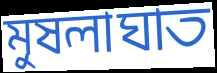
মুষলাঘাত